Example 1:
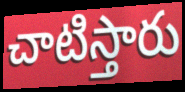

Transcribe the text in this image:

చాటిస్తారు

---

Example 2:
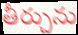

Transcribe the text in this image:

తీర్చును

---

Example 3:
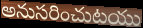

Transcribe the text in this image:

అనుసరించుటయు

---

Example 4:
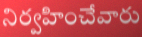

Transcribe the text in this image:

నిర్వహించేవారు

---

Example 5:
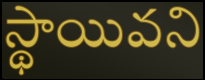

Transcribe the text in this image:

స్థాయివని